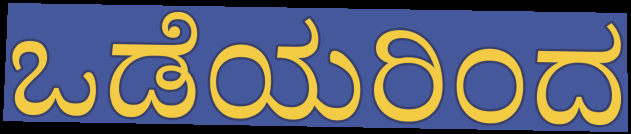
ಒಡೆಯರಿಂದ